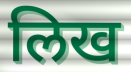
लिख